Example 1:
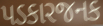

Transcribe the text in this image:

પડકારજનક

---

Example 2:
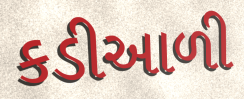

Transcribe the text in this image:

કડીઆળી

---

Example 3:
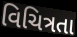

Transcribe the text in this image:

વિચિત્રતા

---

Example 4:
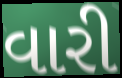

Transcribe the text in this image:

વારી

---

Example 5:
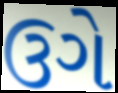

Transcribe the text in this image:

ઉગે